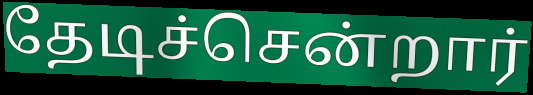
தேடிச்சென்றார்